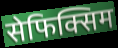
सेफिक्सिम